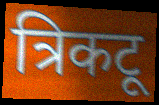
त्रिकटू